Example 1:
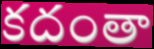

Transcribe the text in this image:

కదంతా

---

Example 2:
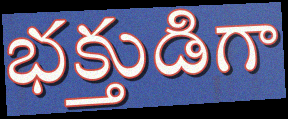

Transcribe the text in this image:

భక్తుడిగా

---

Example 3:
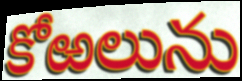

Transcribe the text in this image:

కోఱలును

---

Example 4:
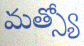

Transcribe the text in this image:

మత్స్యో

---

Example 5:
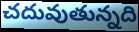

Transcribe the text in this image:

చదువుతున్నది